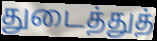
துடைத்துத்